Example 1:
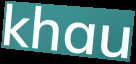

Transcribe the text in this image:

khau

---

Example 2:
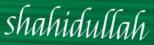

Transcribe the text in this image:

shahidullah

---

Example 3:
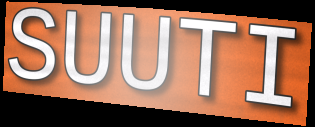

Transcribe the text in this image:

SUUTI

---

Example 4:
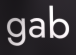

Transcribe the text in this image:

gab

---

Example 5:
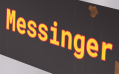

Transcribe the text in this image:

Messinger